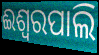
ଈଶ୍ୱରପାଲି